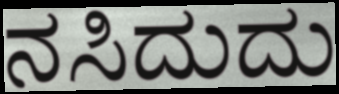
ನಸಿದುದು